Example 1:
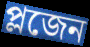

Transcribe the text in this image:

প্লজেন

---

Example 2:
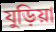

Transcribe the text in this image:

যুড়িয়া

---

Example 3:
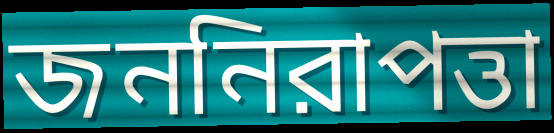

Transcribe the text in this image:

জননিরাপত্তা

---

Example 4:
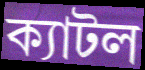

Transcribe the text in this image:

ক্যাটল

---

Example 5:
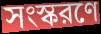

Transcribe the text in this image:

সংস্করণে